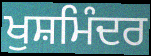
ਖੁਸ਼ਮਿੰਦਰ